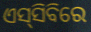
ଏସ୍‌ସିବିରେ